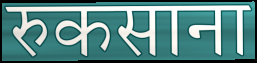
रुकसाना